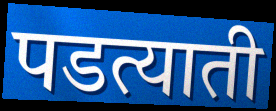
पडत्याती